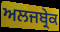
ਅਲਜਬ੍ਰੇਕ